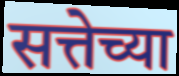
सत्तेच्या